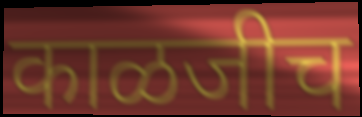
काळजीच